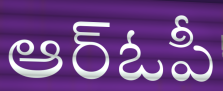
ఆర్ఓపీ